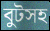
বুটসহ